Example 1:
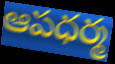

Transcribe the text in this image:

ఆపధర్మ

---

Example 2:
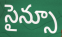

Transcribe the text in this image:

సైన్సూ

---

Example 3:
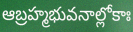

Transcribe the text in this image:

ఆబ్రహ్మభువనాల్లోకాః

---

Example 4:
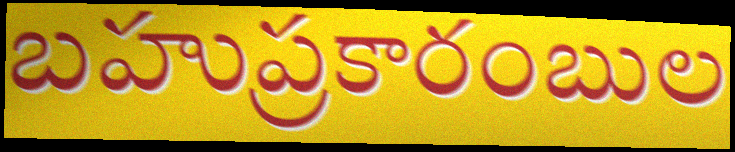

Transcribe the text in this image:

బహుప్రకారంబుల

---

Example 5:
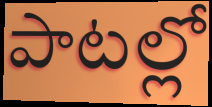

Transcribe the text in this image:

పాటల్లో